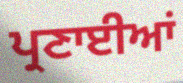
ਪ੍ਰਣਾਈਆਂ